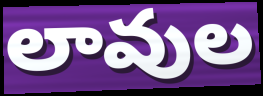
లావుల